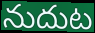
నుదుట